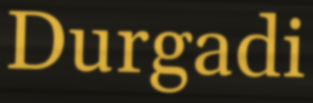
Durgadi